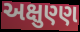
અક્ષુણ્ણ